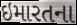
ઇમારતના